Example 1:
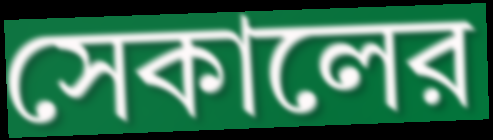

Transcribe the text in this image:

সেকালের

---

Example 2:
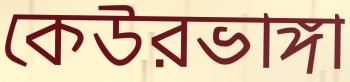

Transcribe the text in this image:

কেউরভাঙ্গা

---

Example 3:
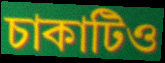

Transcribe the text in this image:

চাকাটিও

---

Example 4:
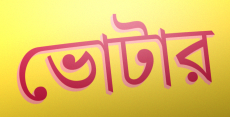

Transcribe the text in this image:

ভোটার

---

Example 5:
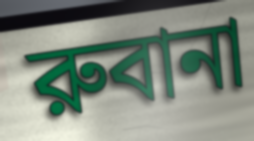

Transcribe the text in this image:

রুবানা